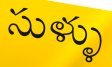
సుళ్ళు